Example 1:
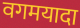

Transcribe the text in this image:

वगमयादा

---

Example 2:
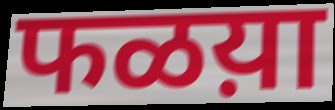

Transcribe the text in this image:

फळय़ा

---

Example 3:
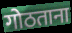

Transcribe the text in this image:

गोठताना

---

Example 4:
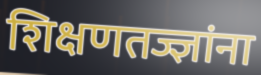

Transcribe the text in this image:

शिक्षणतज्ज्ञांना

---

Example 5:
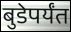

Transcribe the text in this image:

बुडेपर्यंत